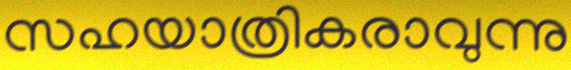
സഹയാത്രികരാവുന്നു